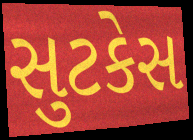
સુટકેસ